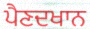
ਪੈਣਦਖਾਨ